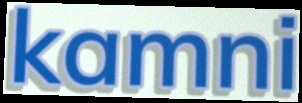
kamni